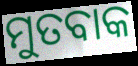
ମୁତବାକ